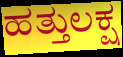
ಹತ್ತುಲಕ್ಷ